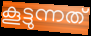
കൂട്ടുന്നത്